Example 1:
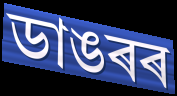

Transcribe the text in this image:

ডাঙৰৰ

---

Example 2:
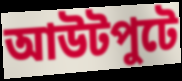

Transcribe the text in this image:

আউটপুটে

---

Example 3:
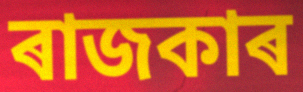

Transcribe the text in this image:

ৰাজকাৰ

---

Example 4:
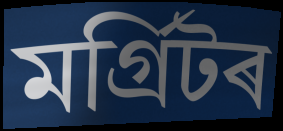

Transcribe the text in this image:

মৰ্গ্ৰিটৰ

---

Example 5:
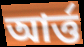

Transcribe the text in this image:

আৰ্ত্ত